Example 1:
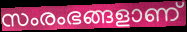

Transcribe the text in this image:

സംരംഭങ്ങളാണ്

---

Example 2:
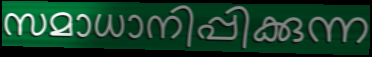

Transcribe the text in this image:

സമാധാനിപ്പിക്കുന്ന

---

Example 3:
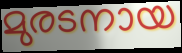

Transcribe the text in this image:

മുരടനായ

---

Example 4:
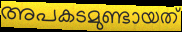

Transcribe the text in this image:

അപകടമുണ്ടായത്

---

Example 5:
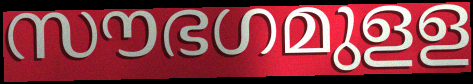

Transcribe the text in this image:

സൗഭഗമുളള